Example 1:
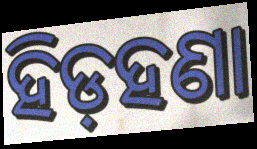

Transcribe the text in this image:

ହିଡ଼ହଣା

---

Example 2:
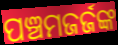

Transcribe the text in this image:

ପଞ୍ଚମଜର୍ଜଙ୍କ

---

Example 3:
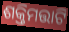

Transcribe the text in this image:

ଶକ୍ତିମତ୍ତାଟି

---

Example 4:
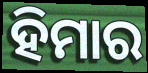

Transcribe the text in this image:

ହିମାର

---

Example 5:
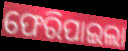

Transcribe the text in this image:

ଫେରିପାଇଲା